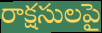
రాక్షసులపై